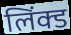
लिंक्ड